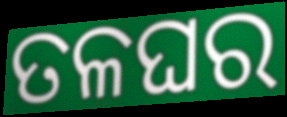
ତଳଘର